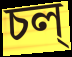
চল্